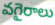
వగైరాలు